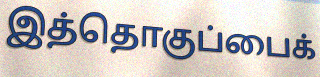
இத்தொகுப்பைக்